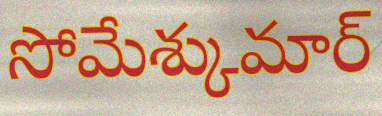
సోమేశ్కుమార్